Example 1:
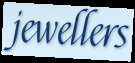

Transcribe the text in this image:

jewellers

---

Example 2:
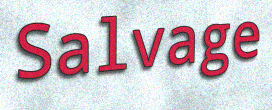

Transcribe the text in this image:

Salvage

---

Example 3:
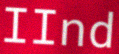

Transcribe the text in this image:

IInd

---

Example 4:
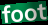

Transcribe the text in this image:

foot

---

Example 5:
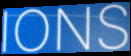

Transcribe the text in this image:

IONS